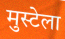
मुस्टेला